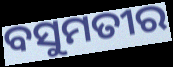
ବସୁମତୀର